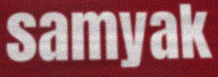
samyak